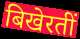
बिखेरतीं